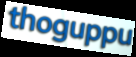
thoguppu